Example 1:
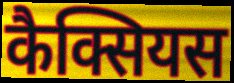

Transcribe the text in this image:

कैक्सियस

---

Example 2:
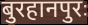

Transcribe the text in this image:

बुरहानपुरः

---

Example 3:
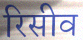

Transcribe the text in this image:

रिसीव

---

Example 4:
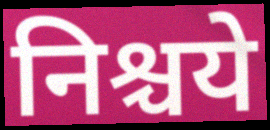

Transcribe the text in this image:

निश्चये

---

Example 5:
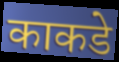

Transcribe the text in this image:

काकडे